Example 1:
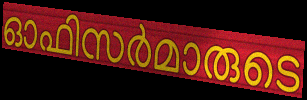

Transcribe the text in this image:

ഓഫിസർമാരുടെ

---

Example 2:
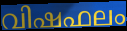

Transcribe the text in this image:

വിഷഫലം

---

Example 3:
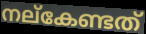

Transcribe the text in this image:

നല്കേണ്ടത്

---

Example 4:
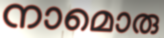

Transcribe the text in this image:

നാമൊരു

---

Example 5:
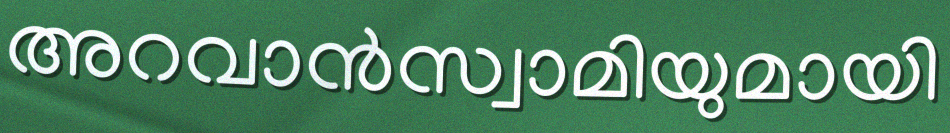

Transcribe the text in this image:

അറവാൻസ്വാമിയുമായി